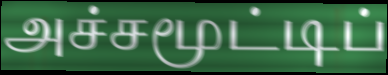
அச்சமூட்டிப்